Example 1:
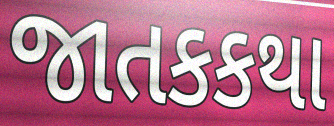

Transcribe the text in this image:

જાતકકથા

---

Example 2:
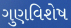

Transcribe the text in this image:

ગુણવિશેષ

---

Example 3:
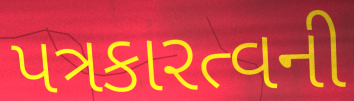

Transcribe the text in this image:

પત્રકારત્વની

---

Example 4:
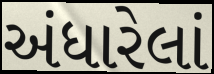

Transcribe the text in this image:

અંધારેલાં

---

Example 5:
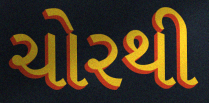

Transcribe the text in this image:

ચોરથી